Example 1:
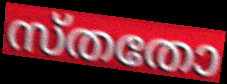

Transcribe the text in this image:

സ്തതോ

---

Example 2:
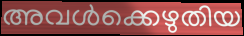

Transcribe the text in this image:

അവൾക്കെഴുതിയ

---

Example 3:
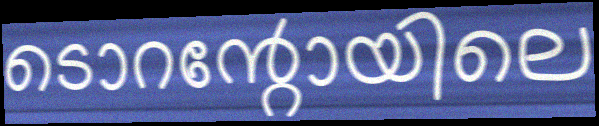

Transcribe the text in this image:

ടൊറന്റോയിലെ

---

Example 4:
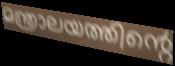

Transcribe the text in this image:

മന്ത്രാലയത്തിന്റെ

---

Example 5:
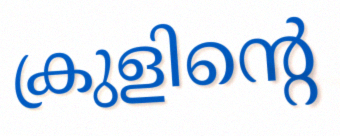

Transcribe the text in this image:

ക്രുളിന്റെ